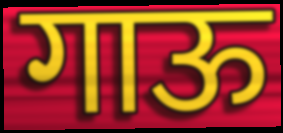
गाऊ